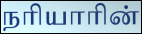
நரியாரின்